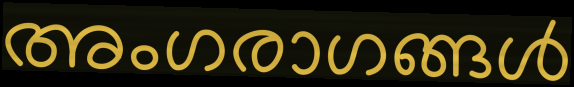
അംഗരാഗങ്ങൾ